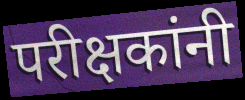
परीक्षकांनी